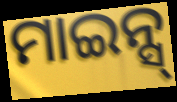
ମାଇନ୍ସ୍